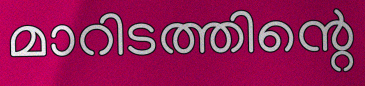
മാറിടത്തിന്റെ